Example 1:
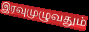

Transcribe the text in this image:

இரவுமுழுவதும்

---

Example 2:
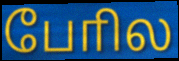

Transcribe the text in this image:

பேரில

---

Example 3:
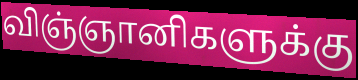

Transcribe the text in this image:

விஞ்ஞானிகளுக்கு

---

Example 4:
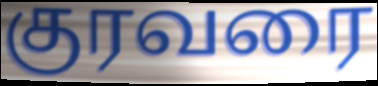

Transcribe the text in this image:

குரவரை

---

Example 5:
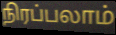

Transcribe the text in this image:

நிரப்பலாம்